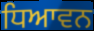
ਧਿਆਵਨ